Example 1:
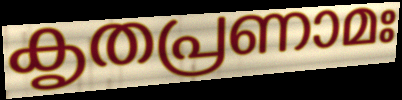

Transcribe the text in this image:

കൃതപ്രണാമഃ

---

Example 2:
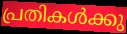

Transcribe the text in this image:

പ്രതികൾക്കു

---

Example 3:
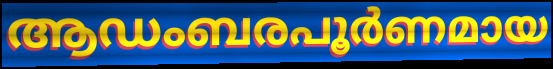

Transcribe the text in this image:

ആഡംബരപൂർണമായ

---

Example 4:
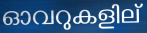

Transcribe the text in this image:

ഓവറുകളില്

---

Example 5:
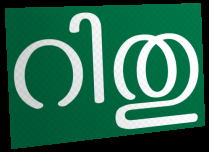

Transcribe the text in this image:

റിതു